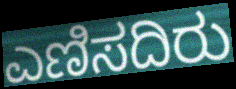
ಎಣಿಸದಿರು